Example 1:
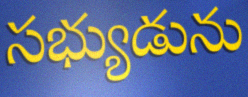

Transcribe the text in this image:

సభ్యుడును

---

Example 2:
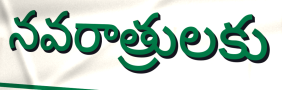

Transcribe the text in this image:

నవరాత్రులకు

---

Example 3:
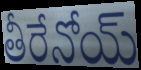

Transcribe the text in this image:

తీరేనోయ్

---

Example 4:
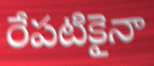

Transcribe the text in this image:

రేపటికైనా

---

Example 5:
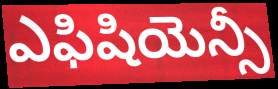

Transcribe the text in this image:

ఎఫిషియెన్సీ